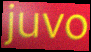
juvo